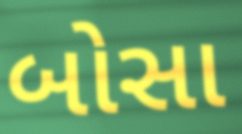
બોસા